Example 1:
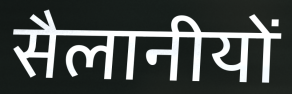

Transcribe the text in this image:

सैलानीयों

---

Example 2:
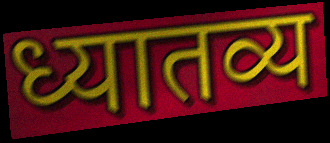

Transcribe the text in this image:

ध्यातव्य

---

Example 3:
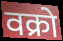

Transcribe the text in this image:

वक्रो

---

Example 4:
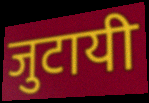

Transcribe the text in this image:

जुटायी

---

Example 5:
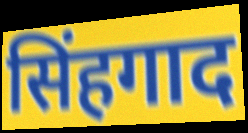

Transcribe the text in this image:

सिंहगाद